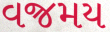
વજ્રમય